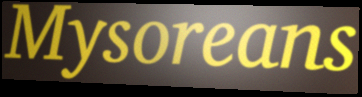
Mysoreans